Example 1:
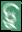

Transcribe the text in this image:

ଡ଼ୁ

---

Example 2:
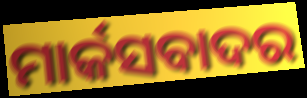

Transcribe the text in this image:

ମାର୍କସବାଦର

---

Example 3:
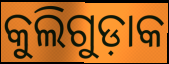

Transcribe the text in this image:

କୁଲିଗୁଡ଼ାକ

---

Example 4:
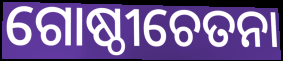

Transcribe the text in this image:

ଗୋଷ୍ଠୀଚେତନା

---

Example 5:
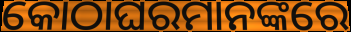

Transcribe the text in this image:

କୋଠାଘରମାନଙ୍କରେ